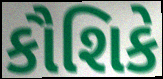
કૌશિકે